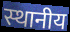
स्‍थानीय